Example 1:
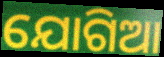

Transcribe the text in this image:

ଯୋଗିଆ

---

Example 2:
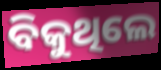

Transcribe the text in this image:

ବିକୁଥିଲେ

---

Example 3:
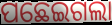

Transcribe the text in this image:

ପଛେଇଗଲା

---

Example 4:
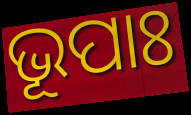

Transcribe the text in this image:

ଭୂପାଃ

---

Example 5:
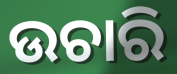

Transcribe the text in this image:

ଉଚାରି